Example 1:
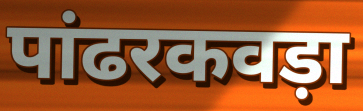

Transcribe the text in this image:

पांढरकवड़ा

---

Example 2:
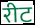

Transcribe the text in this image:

रीट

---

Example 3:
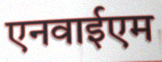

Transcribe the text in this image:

एनवाईएम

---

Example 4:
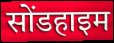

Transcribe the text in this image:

सोंडहाइम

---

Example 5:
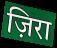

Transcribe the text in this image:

ज़िरा